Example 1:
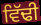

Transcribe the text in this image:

ਵਿੱਢੀ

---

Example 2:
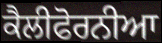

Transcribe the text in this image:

ਕੈਲੀਫੋਰਨੀਆ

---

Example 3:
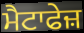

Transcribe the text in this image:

ਮੈਟਾਫੇਜ਼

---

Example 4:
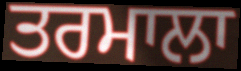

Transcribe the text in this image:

ਤਰਮਾਲਾ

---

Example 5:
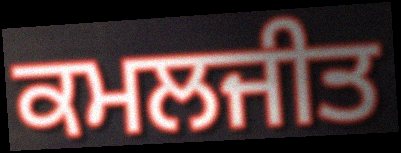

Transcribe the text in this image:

ਕਮਲਜੀਤ